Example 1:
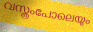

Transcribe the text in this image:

വസ്ത്രംപോലെയും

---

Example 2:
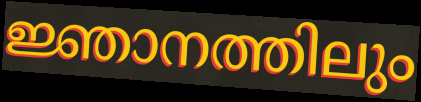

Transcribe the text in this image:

ജ്ഞാനത്തിലും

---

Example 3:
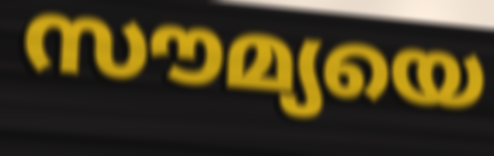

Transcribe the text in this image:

സൗമ്യയെ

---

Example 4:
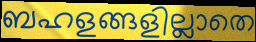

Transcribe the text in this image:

ബഹളങ്ങളില്ലാതെ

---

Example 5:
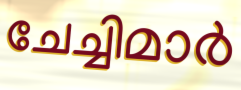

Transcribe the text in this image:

ചേച്ചിമാർ